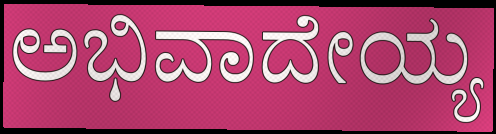
ಅಭಿವಾದೇಯ್ಯ